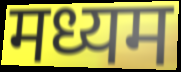
मध्यम